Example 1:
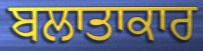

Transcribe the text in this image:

ਬਲਾਤਾਕਾਰ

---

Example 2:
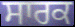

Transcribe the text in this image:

ਸਾਰਕ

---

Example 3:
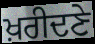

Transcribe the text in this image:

ਖ਼ਰੀਦਣੇ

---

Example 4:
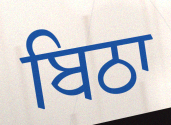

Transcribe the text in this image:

ਬਿਠਾ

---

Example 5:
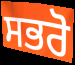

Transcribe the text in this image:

ਸਭਰੋ